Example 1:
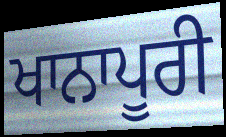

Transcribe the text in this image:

ਖਾਨਾਪੂਰੀ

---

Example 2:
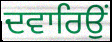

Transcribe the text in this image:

ਦਵਾਰਿਉਂ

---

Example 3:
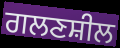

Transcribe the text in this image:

ਗਲਣਸ਼ੀਲ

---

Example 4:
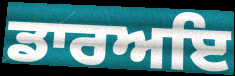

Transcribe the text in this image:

ਡਾਰਅਇ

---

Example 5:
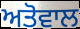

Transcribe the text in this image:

ਅਤੋਵਾਲ